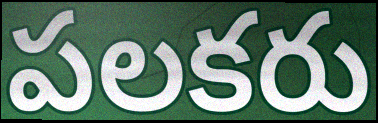
పలకరు